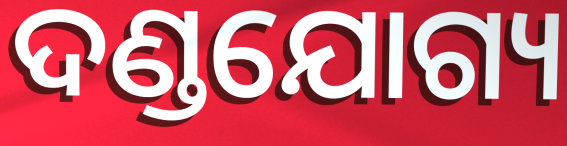
ଦଣ୍ଡଯୋଗ୍ୟ